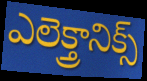
ఎలెక్త్రానిక్స్